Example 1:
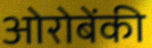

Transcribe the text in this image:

ओरोबेंकी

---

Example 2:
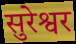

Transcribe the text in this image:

सुरेश्वर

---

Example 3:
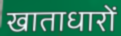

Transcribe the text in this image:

खाताधारों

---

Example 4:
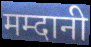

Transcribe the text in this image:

मम्दानी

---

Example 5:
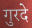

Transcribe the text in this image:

गुरदे